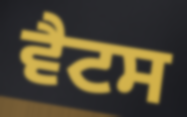
ਵੈਟਸ